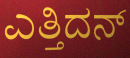
ಎತ್ತಿದನ್